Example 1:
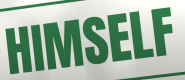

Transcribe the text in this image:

HIMSELF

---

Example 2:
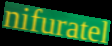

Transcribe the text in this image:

nifuratel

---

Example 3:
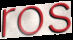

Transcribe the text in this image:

ros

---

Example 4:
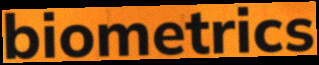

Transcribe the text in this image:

biometrics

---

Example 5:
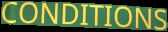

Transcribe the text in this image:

CONDITIONS